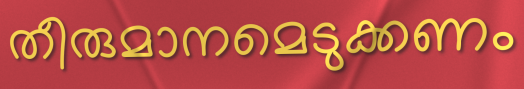
തീരുമാനമെടുക്കണം